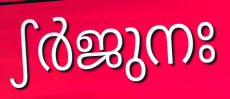
ഽർജുനഃ